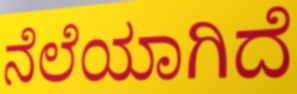
ನೆಲೆಯಾಗಿದೆ